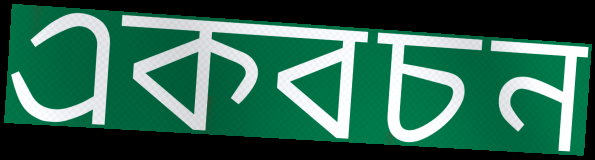
একবচন